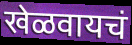
खेळवायचं